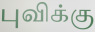
புவிக்கு